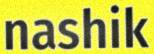
nashik